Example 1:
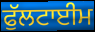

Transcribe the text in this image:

ਫੁੱਲਟਾਈਮ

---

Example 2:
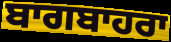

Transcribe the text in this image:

ਬਾਗਬਾਹਰਾ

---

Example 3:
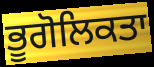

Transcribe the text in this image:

ਭੂਗੋਲਿਕਤਾ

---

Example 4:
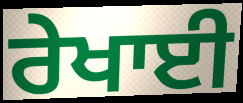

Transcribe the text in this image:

ਰੇਖਾਈ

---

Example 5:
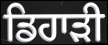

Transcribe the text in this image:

ਡਿਹਾੜੀ